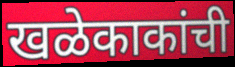
खळेकाकांची